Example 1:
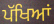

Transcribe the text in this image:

ਪੱਖਿਆਂ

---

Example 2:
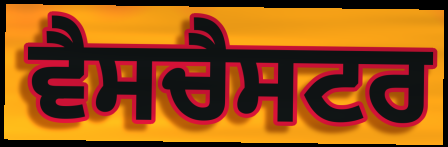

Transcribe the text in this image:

ਵੈਸਚੈਸਟਰ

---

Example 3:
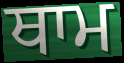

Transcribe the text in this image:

ਥਾਮ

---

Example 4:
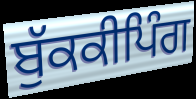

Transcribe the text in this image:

ਬੁੱਕਕੀਪਿੰਗ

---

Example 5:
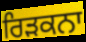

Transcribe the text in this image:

ਰਿੜਕਨਾ